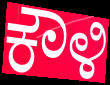
ಕೌಳಿ